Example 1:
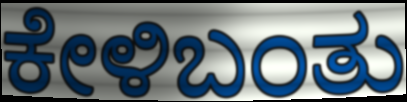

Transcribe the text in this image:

ಕೇಳಿಬಂತು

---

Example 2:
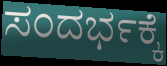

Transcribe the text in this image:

ಸಂದರ್ಭಕ್ಕೆ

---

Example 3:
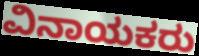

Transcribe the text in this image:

ವಿನಾಯಕರು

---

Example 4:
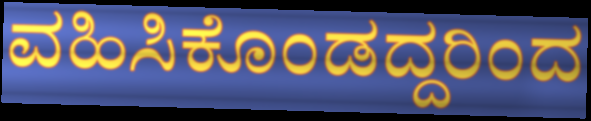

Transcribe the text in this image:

ವಹಿಸಿಕೊಂಡದ್ದರಿಂದ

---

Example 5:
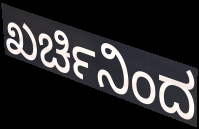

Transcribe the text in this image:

ಖರ್ಚಿನಿಂದ